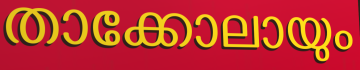
താക്കോലായും